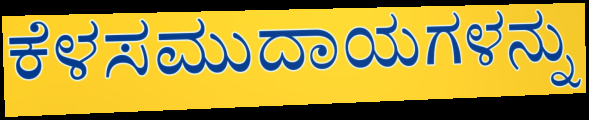
ಕೆಳಸಮುದಾಯಗಳನ್ನು